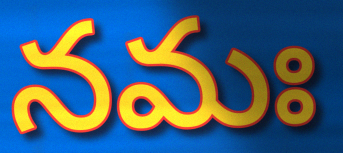
నమః